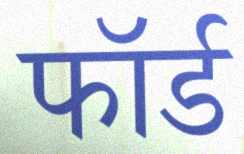
फॉर्ड